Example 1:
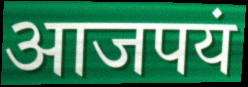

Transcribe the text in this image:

आजपयं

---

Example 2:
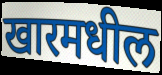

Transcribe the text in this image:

खारमधील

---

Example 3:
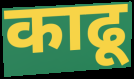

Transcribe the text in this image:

काढू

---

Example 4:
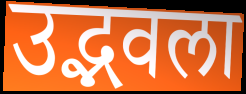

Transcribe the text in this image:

उद्भवला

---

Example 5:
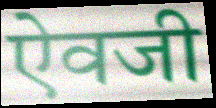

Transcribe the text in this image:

ऐवजी